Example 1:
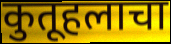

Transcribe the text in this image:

कुतूहलाचा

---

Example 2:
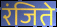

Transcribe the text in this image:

रंजिते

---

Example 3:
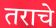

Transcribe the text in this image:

तराचे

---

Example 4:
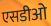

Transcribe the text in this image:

एसडीओ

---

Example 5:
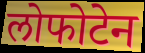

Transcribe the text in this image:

लोफोटेन